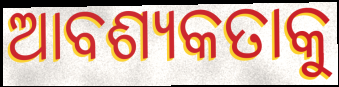
ଆବଶ୍ୟକତାକୁ